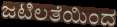
ಜಟಿಲತೆಯಿಂದ